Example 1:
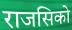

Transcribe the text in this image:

राजसिको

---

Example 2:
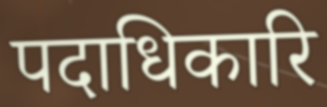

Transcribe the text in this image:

पदाधिकारि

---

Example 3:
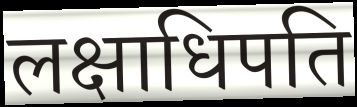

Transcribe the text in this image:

लक्षाधिपति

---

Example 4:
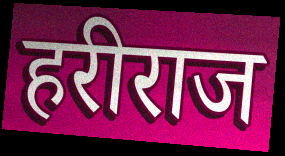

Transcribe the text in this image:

हरीराज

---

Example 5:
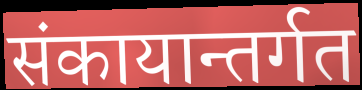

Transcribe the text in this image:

संकायान्तर्गत